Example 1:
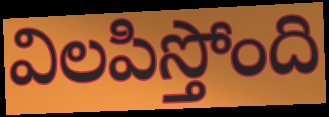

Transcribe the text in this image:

విలపిస్తోంది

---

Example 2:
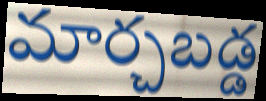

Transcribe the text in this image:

మార్చబడ్డ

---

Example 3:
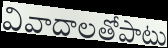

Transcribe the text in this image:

వివాదాలతోపాటు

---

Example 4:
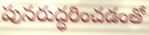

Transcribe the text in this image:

పునరుద్ధరించడంతో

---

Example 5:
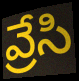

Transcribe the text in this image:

వ్రేసి